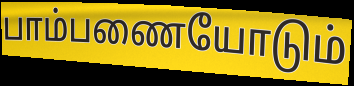
பாம்பணையோடும்